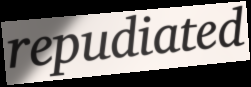
repudiated